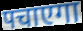
पचाएगा